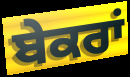
ਬੇਕਰਾਂ